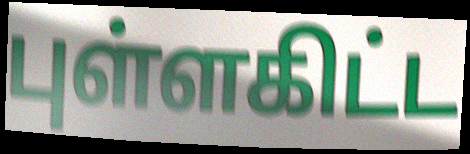
புள்ளகிட்ட